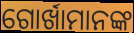
ଗୋର୍ଖାମାନଙ୍କ